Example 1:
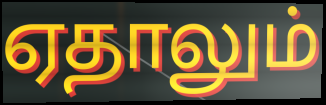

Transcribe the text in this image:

ஏதாலும்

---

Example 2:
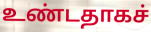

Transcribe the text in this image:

உண்டதாகச்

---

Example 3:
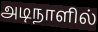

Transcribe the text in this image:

அடிநாளில்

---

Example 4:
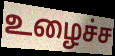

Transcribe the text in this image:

உழைச்ச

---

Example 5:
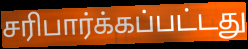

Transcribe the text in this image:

சரிபார்க்கப்பட்டது